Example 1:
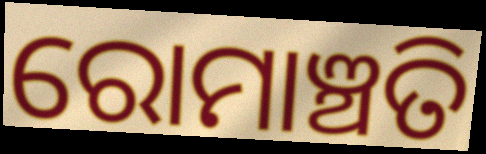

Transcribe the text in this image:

ରୋମାଞ୍ଚତି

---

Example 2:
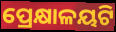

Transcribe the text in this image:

ପ୍ରେକ୍ଷାଳୟଟି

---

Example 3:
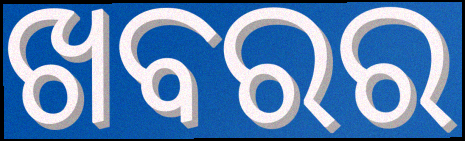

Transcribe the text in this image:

ଖବରର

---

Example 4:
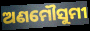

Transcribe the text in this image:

ଅଣମୌସୁମୀ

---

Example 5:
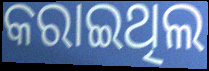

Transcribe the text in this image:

କରାଇଥିଲ